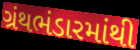
ગ્રંથભંડારમાંથી